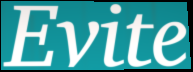
Evite